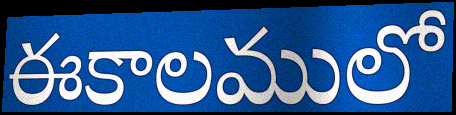
ఈకాలములో